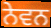
ਨੇਵਨ